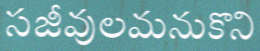
సజీవులమనుకొని